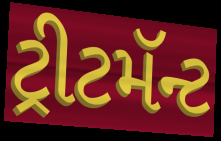
ટ્રીટમૅન્ટ